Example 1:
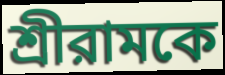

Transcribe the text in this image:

শ্রীরামকে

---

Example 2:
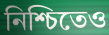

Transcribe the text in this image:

নিশ্চিতেও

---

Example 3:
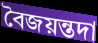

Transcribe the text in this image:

বৈজয়ন্তদা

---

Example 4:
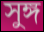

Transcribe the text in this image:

সুঙ্গ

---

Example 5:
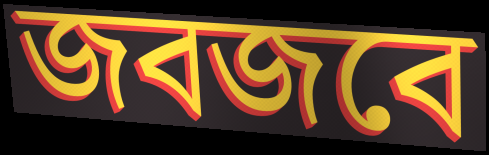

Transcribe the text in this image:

জবজবে